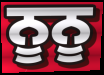
ਨੂਨੂ